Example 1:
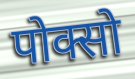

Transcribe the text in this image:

पोक्सो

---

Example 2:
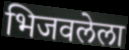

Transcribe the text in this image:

भिजवलेला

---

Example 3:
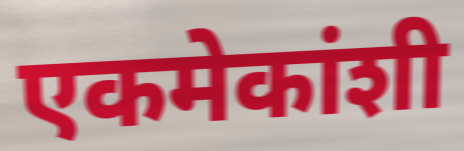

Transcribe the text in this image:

एकमेकांशी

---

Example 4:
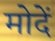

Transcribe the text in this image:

मोदें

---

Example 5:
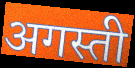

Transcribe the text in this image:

अगस्ती